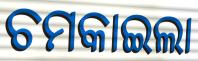
ଚମକାଇଲା